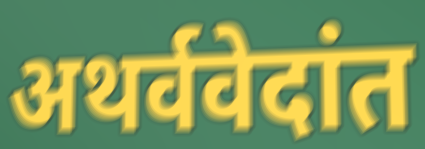
अथर्ववेदांत